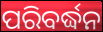
ପରିବର୍ଦ୍ଧନ